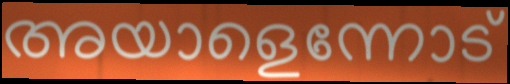
അയാളെന്നോട്